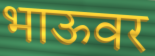
भाऊवर